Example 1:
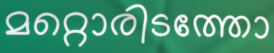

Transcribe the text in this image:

മറ്റൊരിടത്തോ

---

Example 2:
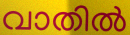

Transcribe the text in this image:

വാതിൽ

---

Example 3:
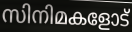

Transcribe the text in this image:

സിനിമകളോട്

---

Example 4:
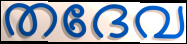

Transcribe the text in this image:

തദേവ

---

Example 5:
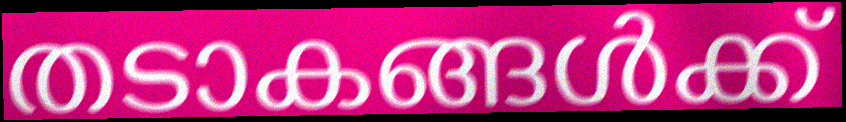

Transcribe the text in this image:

തടാകങ്ങൾക്ക്